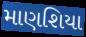
માણશિયા